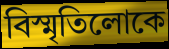
বিস্মৃতিলোকে